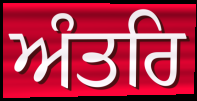
ਅੰਤਰਿ